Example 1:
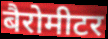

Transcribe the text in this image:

बैरोमीटर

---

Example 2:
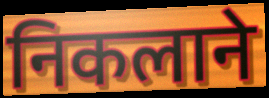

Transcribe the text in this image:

निकलाने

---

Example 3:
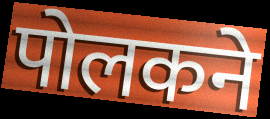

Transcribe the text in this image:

पोलकने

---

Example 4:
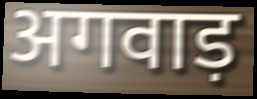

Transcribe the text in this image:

अगवाड़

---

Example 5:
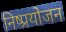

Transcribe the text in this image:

निष्प्रयोजन